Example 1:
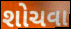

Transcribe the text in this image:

શોચવા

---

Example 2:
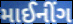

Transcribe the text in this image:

માઈનીંગ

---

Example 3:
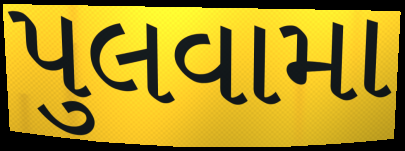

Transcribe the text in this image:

પુલવામા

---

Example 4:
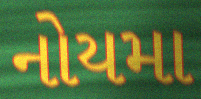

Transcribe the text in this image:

નોયમા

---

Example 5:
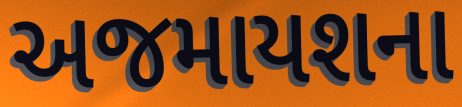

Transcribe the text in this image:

અજમાયશના